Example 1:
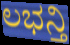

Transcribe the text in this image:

ಲಭನ್ತಿ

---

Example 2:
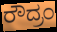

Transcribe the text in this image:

ರೌದ್ರಂ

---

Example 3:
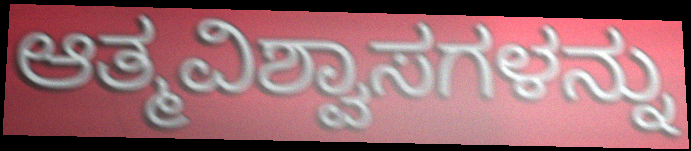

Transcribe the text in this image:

ಆತ್ಮವಿಶ್ವಾಸಗಳನ್ನು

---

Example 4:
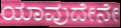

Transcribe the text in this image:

ಯಾವುದೇನೇ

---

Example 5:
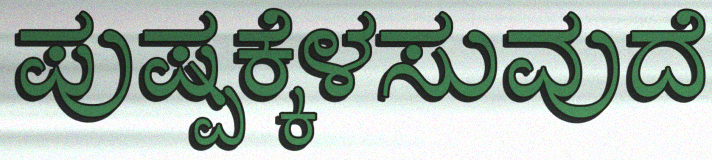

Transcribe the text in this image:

ಪುಷ್ಪಕ್ಕೆಳಸುವುದೆ